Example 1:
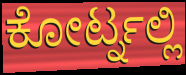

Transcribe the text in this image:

ಕೋರ್ಟ್ನಲ್ಲಿ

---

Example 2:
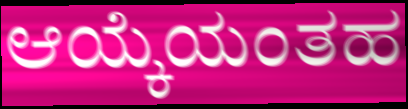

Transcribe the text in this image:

ಆಯ್ಕೆಯಂತಹ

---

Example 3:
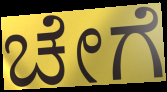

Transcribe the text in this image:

ಚೇಗೆ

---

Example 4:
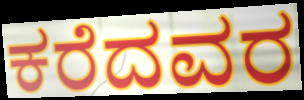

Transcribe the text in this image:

ಕರೆದವರ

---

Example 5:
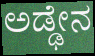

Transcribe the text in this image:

ಅಡ್ಢೇನ